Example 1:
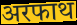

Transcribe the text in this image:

अरफाथ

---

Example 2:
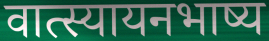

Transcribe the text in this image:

वात्स्यायनभाष्य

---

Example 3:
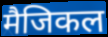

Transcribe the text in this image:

मैजिकल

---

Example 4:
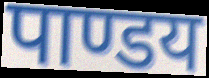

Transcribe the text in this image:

पाण्डय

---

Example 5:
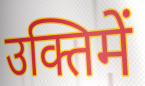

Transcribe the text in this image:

उक्तिमें